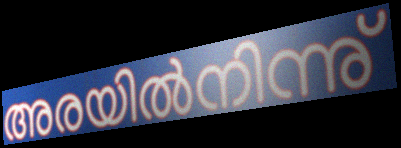
അരയിൽനിന്നു്